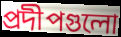
প্রদীপগুলো